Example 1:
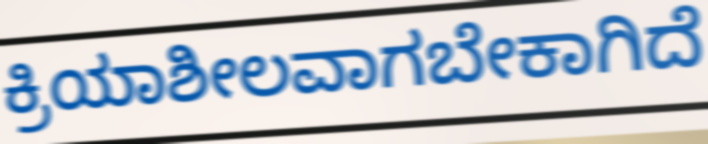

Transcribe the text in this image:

ಕ್ರಿಯಾಶೀಲವಾಗಬೇಕಾಗಿದೆ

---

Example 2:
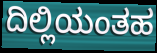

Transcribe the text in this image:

ದಿಲ್ಲಿಯಂತಹ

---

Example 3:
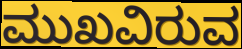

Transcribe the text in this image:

ಮುಖವಿರುವ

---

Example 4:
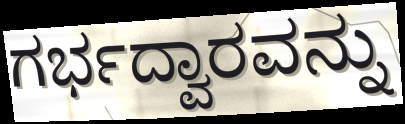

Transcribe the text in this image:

ಗರ್ಭದ್ವಾರವನ್ನು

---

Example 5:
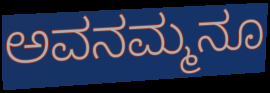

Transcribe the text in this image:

ಅವನಮ್ಮನೂ